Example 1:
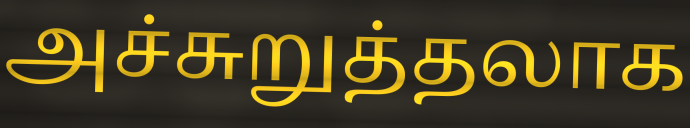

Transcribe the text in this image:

அச்சுறுத்தலாக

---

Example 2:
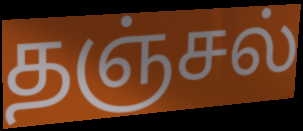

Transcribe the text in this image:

தஞ்சல்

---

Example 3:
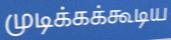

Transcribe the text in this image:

முடிக்கக்கூடிய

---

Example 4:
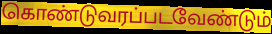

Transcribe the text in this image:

கொண்டுவரப்படவேண்டும்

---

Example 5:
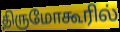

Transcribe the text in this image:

திருமோகூரில்